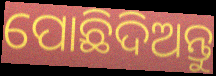
ପୋଛିଦିଅନ୍ତୁ